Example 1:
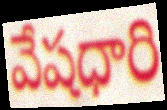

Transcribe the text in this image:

వేషధారి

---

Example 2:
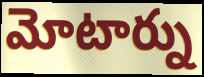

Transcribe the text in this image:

మోటార్ను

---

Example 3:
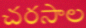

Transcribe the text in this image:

చరసాల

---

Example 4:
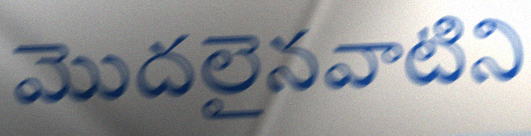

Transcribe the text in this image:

మొదలైనవాటిని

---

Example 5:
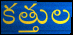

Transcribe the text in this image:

కత్తుల